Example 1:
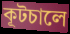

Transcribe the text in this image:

কূটচালে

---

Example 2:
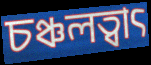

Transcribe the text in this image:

চঞ্চলত্বাৎ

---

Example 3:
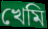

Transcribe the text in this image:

খেমি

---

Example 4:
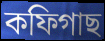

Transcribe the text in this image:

কফিগাছ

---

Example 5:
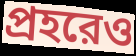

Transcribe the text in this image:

প্রহরেও